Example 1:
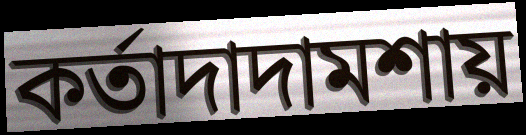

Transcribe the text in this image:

কর্তাদাদামশায়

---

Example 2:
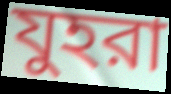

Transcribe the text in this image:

যুহরা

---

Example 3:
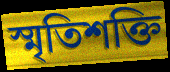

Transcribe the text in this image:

স্মৃতিশক্তি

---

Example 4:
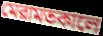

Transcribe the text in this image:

মেরামতকালে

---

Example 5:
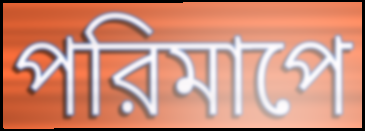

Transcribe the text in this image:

পরিমাপে